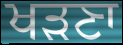
ਖੜਣਾ